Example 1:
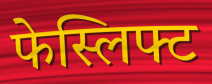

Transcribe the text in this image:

फेस्लिफ्ट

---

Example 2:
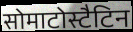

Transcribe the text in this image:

सोमाटोस्टैटिन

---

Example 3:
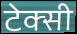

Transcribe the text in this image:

टेक्‍सी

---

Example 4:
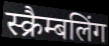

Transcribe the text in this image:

स्क्रैम्बलिंग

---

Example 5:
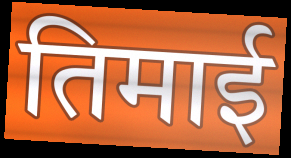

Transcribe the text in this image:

तिमाई